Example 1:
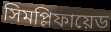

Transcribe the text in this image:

সিমপ্লিফায়েড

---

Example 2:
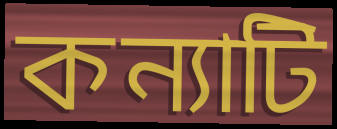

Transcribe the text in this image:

কন্যাটি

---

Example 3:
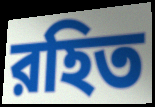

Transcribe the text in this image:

রহিত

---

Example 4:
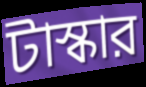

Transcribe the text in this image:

টাস্কার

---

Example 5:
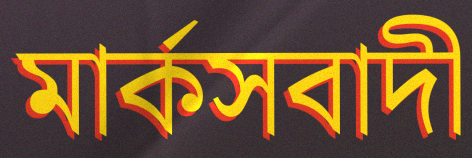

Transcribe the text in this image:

মার্কসবাদী